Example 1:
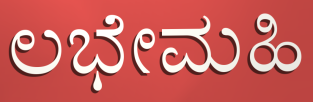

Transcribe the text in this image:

ಲಭೇಮಹಿ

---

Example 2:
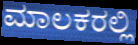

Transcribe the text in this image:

ಮಾಲಕರಲ್ಲಿ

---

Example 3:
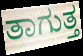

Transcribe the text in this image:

ತಾಗುತ್ತ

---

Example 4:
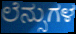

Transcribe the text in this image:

ಲೆನ್ಸುಗಳ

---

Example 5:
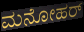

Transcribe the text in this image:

ಮನೋಹರ್